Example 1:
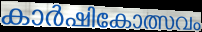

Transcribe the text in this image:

കാർഷികോത്സവം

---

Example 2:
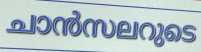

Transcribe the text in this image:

ചാൻസലറുടെ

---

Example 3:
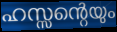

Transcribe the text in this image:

ഹസ്സന്റെയും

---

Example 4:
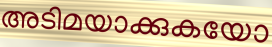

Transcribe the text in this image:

അടിമയാക്കുകയോ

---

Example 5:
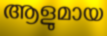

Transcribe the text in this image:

ആളുമായ